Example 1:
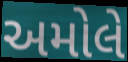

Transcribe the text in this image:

અમોલે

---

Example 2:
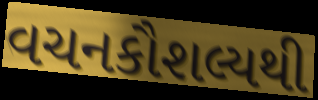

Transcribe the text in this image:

વચનકૌશલ્યથી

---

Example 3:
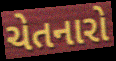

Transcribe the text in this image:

ચેતનારો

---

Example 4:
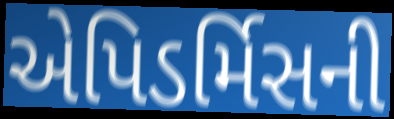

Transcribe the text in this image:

એપિડર્મિસની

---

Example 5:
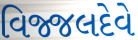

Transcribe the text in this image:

વિજ્જલદેવે